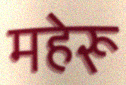
महेरू